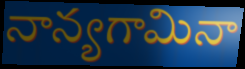
నాన్యగామినా